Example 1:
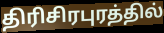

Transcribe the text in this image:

திரிசிரபுரத்தில்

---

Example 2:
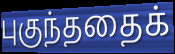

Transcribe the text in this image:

புகுந்ததைக்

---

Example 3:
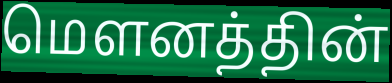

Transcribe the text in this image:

மௌனத்தின்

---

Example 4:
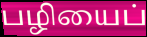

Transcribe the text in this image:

பழியைப்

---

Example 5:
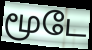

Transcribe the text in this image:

மூடே